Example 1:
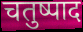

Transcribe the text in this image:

चतुष्पाद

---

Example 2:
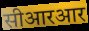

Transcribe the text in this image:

सीआरआर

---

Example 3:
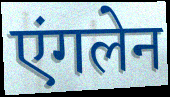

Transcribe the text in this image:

एंगलेन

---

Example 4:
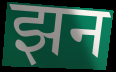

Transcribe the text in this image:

झन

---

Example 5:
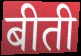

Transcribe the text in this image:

बीती